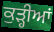
ਕੁੜ੍ਹੀਆਂ